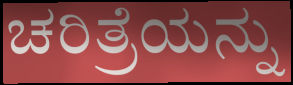
ಚರಿತ್ರೆಯನ್ನು